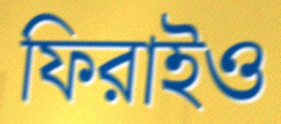
ফিরাইও